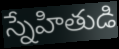
స్నేహితుడి